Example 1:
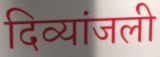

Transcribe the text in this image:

दिव्यांजली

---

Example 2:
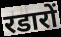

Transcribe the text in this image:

रडारों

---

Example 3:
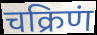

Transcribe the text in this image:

चक्रिणं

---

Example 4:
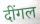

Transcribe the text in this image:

दींगल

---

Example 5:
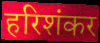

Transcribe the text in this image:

हरिशंकर